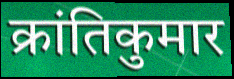
क्रांतिकुमार